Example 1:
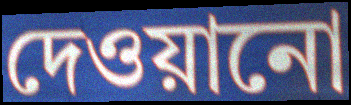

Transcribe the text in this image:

দেওয়ানো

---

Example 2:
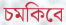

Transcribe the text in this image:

চমকিবে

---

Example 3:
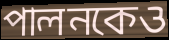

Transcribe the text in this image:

পালনকেও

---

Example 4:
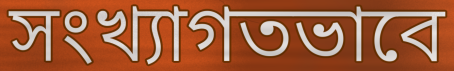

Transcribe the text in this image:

সংখ্যাগতভাবে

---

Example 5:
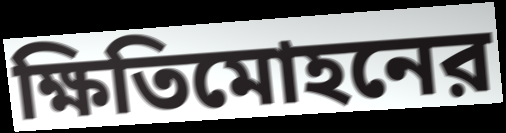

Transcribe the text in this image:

ক্ষিতিমোহনের